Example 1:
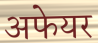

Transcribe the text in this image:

अफेयर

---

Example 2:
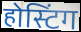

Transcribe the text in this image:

होस्टिंग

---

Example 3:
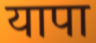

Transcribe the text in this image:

यापा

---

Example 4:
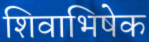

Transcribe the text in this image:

शिवाभिषेक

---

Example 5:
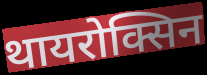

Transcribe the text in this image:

थायरोक्सिन